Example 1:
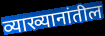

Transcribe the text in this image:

व्याख्यानांतील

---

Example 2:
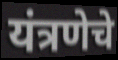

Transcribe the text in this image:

यंत्रणेचे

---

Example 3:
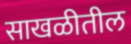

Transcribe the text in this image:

साखळीतील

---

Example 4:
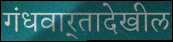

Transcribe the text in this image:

गंधवार्तादेखील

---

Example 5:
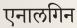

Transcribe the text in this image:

एनालगिन